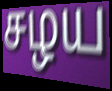
சழய